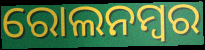
ରୋଲନମ୍ବର